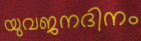
യുവജനദിനം